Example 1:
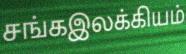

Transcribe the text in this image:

சங்கஇலக்கியம்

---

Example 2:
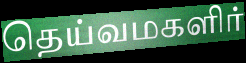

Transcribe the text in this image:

தெய்வமகளிர்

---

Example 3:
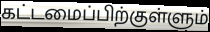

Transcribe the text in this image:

கட்டமைப்பிற்குள்ளும்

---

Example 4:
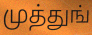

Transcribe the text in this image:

முத்துங்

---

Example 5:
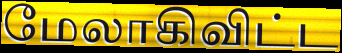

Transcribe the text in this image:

மேலாகிவிட்ட